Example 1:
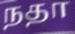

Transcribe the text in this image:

நதா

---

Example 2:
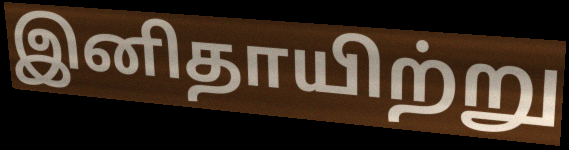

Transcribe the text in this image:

இனிதாயிற்று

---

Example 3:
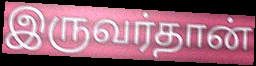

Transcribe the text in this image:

இருவர்தான்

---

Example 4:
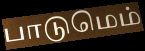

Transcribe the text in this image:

பாடுமெம்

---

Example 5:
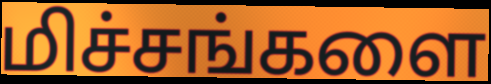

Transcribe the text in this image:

மிச்சங்களை